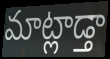
మాట్లాడ్తా